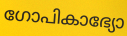
ഗോപികാഭ്യോ